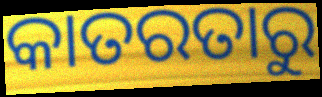
କାତରତାରୁ